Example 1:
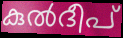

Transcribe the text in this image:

കുൽദീപ്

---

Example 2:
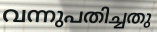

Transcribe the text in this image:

വന്നുപതിച്ചതു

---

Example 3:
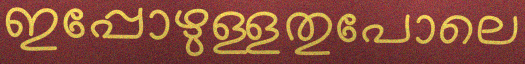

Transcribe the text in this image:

ഇപ്പോഴുള്ളതുപോലെ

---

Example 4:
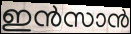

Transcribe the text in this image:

ഇൻസാൻ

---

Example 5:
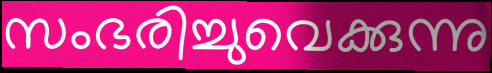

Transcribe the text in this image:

സംഭരിച്ചുവെക്കുന്നു